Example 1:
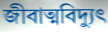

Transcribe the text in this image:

জীবাত্মবিদ্যুৎ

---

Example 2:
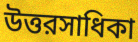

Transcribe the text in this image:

উত্তরসাধিকা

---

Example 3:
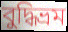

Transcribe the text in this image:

বুদ্ধিভ্রম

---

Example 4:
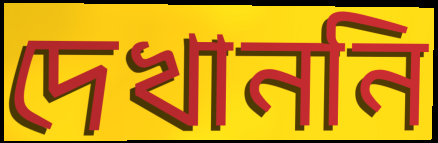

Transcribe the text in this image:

দেখাননি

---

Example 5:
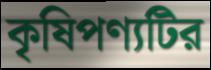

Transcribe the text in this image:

কৃষিপণ্যটির